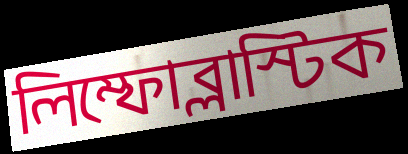
লিম্ফোব্লাস্টিক